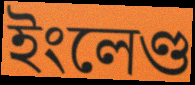
ইংলেণ্ড